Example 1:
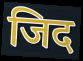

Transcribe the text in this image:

जिद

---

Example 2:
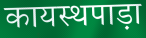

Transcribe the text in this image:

कायस्थपाड़ा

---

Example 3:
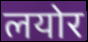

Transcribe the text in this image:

लयोर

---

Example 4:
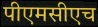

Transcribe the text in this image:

पीएमसीएच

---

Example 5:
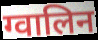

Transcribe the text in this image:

ग्वालिन